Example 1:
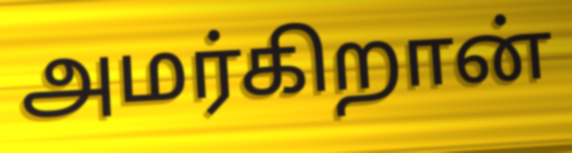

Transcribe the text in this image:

அமர்கிறான்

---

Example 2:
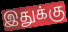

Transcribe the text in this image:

இதுக்கு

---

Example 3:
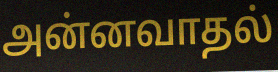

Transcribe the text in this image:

அன்னவாதல்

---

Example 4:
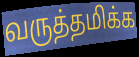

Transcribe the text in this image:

வருத்தமிக்க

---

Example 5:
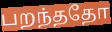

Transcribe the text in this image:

பறந்ததோ